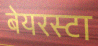
बेयरस्टा